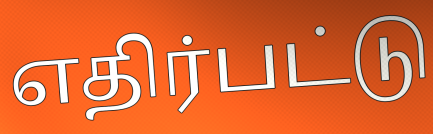
எதிர்பட்டு